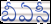
బీఏసీ